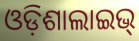
ଓଡ଼ିଶାଲାଇଭ୍